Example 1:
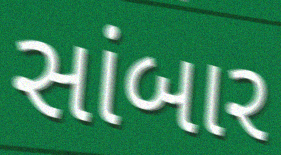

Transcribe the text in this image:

સાંબાર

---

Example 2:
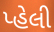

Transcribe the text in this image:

પ્હેલી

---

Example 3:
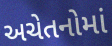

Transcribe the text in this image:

અચેતનોમાં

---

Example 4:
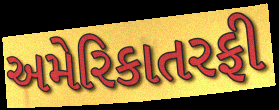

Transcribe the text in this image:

અમેરિકાતરફી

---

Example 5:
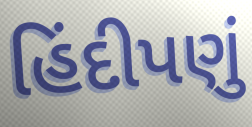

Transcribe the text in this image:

હિંદીપણું